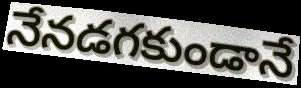
నేనడగకుండానే